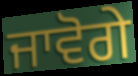
ਜਾਵੋਗੇ